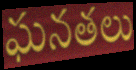
ఘనతలు